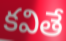
కవితే